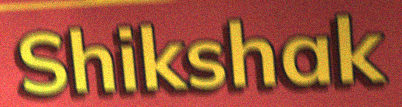
Shikshak